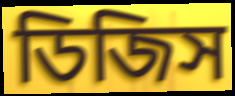
ডিজিস